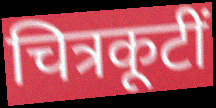
चित्रकूटीं